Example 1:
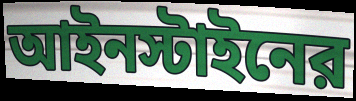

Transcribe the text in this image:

আইনস্টাইনের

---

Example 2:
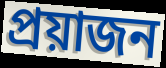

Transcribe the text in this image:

প্রয়াজন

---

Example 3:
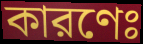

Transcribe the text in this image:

কারণেঃ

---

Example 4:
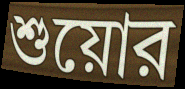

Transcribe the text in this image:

শুয়োর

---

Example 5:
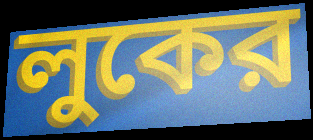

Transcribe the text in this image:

লুকের